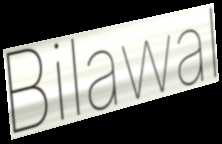
Bilawal